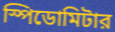
স্পিডোমিটার